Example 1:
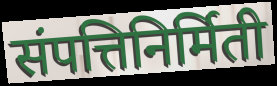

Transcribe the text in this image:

संपत्तिनिर्मिती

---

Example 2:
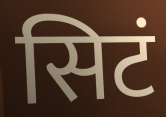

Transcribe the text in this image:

सिटं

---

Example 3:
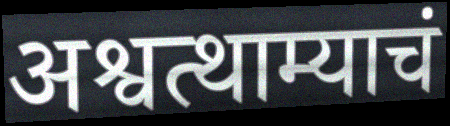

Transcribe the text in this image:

अश्वत्थाम्याचं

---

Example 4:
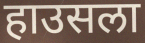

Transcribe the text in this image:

हाउसला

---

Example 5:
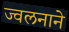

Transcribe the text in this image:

ज्वलनाने